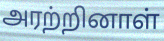
அரற்றினாள்